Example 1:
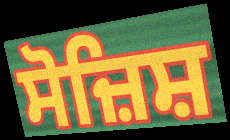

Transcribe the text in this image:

ਸੋਜ਼ਿਸ਼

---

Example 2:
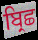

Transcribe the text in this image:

ਬ੍ਰਿਛ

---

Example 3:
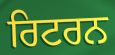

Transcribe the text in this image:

ਰਿਟਰਨ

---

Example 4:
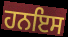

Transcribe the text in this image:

ਹਨਇਸ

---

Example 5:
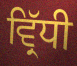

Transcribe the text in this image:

ਵ੍ਰਿੱਧੀ